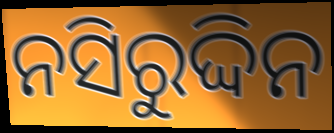
ନସିରୁଦ୍ଦିନ